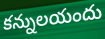
కన్నులయందు